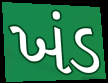
ખંડ